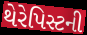
થેરેપિસ્ટની